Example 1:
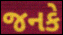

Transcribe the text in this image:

જનકે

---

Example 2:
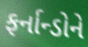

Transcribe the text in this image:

ફર્નાન્ડોને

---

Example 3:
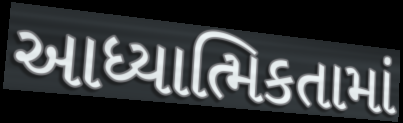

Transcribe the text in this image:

આધ્યાત્મિકતામાં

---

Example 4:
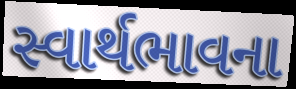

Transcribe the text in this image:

સ્વાર્થભાવના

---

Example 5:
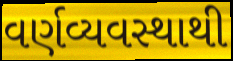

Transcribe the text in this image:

વર્ણવ્યવસ્થાથી